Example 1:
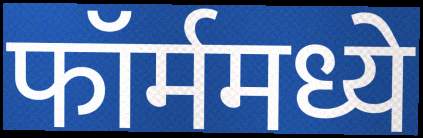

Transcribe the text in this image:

फॉर्ममध्ये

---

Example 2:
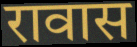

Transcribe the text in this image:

रावास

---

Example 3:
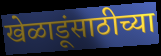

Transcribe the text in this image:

खेळाडूंसाठीच्या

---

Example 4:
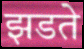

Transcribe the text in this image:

झडते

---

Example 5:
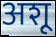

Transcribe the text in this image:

अश्रू